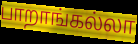
பாறாங்கல்லா